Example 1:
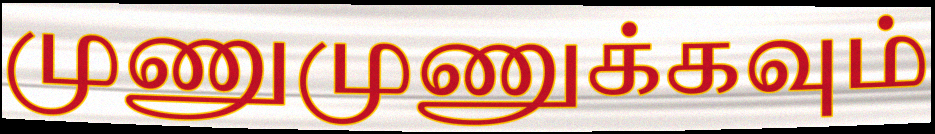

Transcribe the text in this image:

முணுமுணுக்கவும்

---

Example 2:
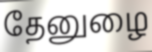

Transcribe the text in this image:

தேனுழை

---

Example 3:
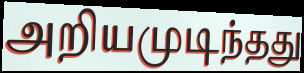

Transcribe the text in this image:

அறியமுடிந்தது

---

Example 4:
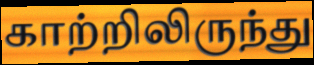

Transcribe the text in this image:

காற்றிலிருந்து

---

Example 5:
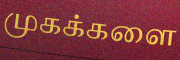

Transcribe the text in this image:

முகக்களை